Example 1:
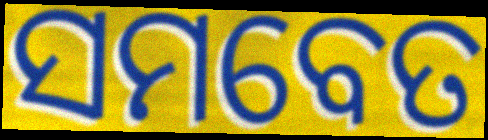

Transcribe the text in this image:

ସମବେତ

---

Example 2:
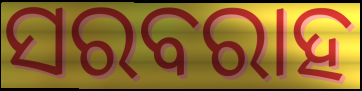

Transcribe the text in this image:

ସରବରାହ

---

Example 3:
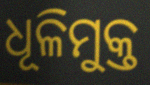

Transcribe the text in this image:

ଧୂଳିମୁକ୍ତ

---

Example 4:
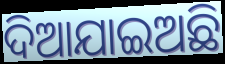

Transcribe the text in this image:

ଦିଆଯାଇଅଛି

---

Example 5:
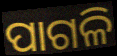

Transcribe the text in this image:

ପାଗଳି